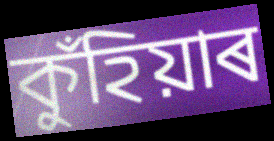
কুঁহিয়াৰ